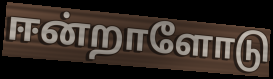
ஈன்றாளோடு